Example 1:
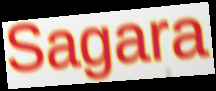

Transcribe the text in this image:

Sagara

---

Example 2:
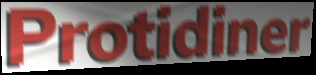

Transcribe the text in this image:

Protidiner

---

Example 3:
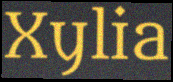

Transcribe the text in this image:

Xylia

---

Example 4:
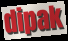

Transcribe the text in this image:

dipak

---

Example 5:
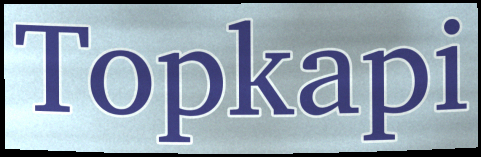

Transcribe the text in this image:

Topkapi